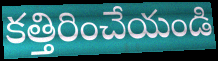
కత్తిరించేయండి